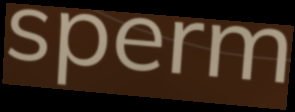
sperm